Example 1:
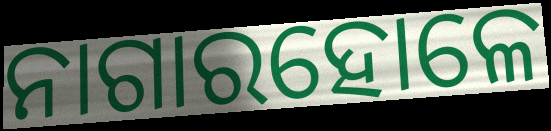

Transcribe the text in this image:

ନାଗାରହୋଳେ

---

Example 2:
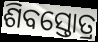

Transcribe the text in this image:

ଶିବସ୍ତୋତ୍ର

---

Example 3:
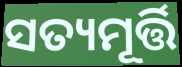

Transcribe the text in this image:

ସତ୍ୟମୂର୍ତ୍ତି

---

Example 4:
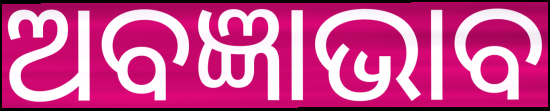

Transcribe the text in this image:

ଅବଜ୍ଞାଭାବ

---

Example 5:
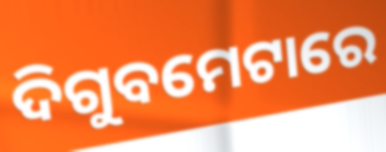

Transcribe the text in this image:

ଦିଗୁବମେଟାରେ